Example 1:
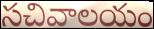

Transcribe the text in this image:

సచివాలయం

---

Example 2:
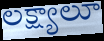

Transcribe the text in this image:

లక్ష్యాలూ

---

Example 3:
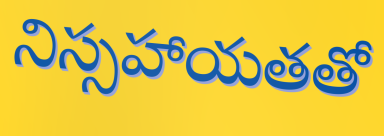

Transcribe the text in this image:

నిస్సహాయతతో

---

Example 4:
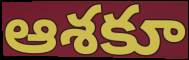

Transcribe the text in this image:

ఆశకూ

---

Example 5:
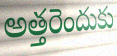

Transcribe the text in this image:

అత్తరెందుకు